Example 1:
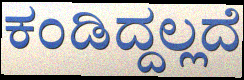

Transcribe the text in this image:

ಕಂಡಿದ್ದಲ್ಲದೆ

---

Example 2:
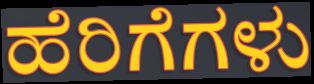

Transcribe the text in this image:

ಹೆರಿಗೆಗಳು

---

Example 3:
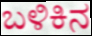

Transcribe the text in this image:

ಬಳಿಕಿನ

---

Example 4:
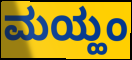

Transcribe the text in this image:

ಮಯ್ಹಂ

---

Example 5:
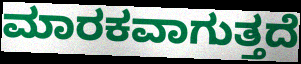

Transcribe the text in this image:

ಮಾರಕವಾಗುತ್ತದೆ